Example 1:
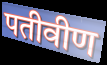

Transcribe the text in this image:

पतीवीण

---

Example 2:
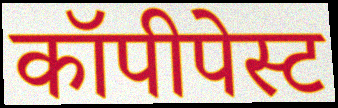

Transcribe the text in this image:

कॉपीपेस्ट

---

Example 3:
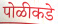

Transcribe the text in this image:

पोळीकडे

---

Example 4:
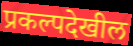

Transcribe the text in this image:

प्रकल्पदेखील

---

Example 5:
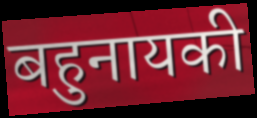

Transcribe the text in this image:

बहुनायकी